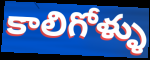
కాలిగోళ్ళు